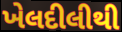
ખેલદીલીથી